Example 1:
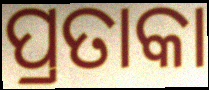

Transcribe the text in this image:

ପ୍ରତାକା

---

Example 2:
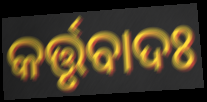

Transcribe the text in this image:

କର୍ତ୍ତୃବାଦଃ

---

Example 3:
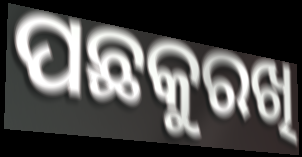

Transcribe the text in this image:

ପଛକୁରଖି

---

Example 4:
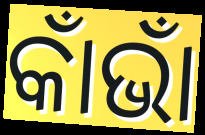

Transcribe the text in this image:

କାଁଭାଁ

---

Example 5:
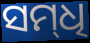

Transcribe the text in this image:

ସମ୍‌ଧି